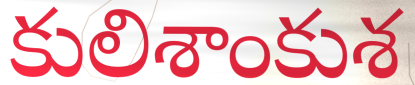
కులిశాంకుశ